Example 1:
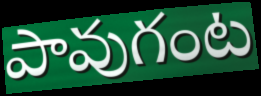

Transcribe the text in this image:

పావుగంట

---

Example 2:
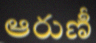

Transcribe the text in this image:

ఆరుణీ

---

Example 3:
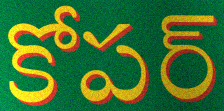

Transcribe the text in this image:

కోపర్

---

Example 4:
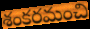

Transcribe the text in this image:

శంకరమంచి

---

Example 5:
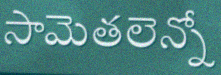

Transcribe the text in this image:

సామెతలెన్నో